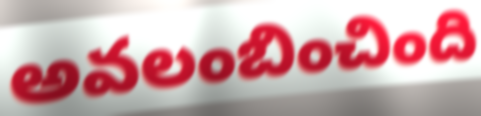
అవలంబించింది